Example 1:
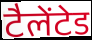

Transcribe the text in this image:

टैलेंटेड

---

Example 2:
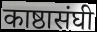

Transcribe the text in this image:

काष्ठासंघी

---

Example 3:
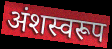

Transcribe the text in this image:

अंशस्वरूप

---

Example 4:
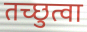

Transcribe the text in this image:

तच्छुत्वा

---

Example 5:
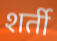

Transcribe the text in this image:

शर्ती